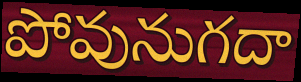
పోవునుగదా